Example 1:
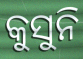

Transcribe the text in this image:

କୁସୁନି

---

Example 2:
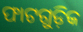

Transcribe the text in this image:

ଫାଟଗୁଡ଼ିକ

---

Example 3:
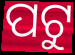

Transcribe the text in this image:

ପଟୁ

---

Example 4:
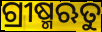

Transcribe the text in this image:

ଗ୍ରୀଷ୍ମଋତୁ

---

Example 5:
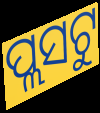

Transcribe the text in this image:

ପ୍ଲସଟୁ